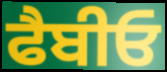
ਫੈਬੀਓ